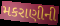
મકરાણીની